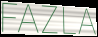
FAZLA